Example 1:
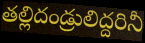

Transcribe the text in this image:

తల్లిదండ్రులిద్దరినీ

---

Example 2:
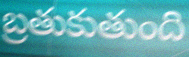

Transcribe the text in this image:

బ్రతుకుతుంది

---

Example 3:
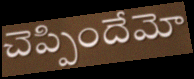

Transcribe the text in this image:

చెప్పిందేమో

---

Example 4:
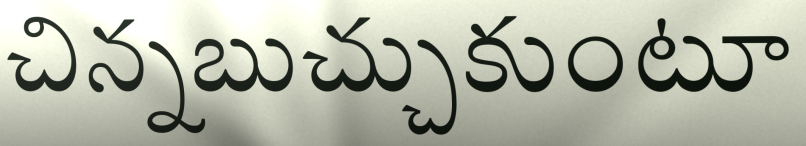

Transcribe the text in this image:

చిన్నబుచ్చుకుంటూ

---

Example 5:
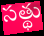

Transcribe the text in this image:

సత్థు